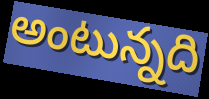
అంటున్నది